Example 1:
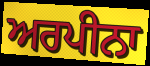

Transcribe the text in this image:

ਅਰਪੀਨਾ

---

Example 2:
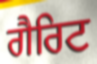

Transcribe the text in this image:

ਗੈਰਿਟ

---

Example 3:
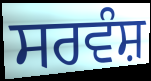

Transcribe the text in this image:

ਸਰਵੰਸ਼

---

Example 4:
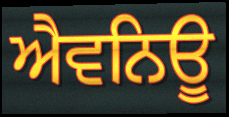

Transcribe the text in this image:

ਐਵਨਿਊ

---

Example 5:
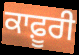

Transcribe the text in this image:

ਕਾਫ਼ੂਰੀ